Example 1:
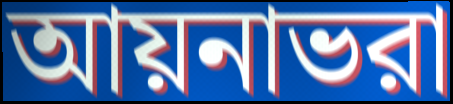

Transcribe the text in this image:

আয়নাভরা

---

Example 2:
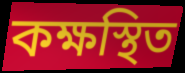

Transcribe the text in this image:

কক্ষস্থিত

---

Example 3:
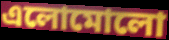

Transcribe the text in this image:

এলোমোলো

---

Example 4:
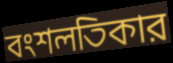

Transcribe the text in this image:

বংশলতিকার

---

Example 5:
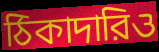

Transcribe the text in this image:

ঠিকাদারিও